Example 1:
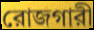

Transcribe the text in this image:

রোজগারী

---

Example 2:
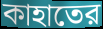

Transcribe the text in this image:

কাহাতের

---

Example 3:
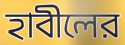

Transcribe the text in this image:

হাবীলের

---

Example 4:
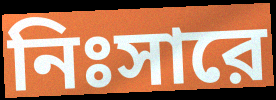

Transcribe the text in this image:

নিঃসারে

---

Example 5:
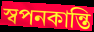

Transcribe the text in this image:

স্বপনকান্তি